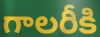
గాలరీకి